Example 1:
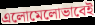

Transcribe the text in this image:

এলোমেলোভাবেই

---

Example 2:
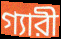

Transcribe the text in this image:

গ্যারী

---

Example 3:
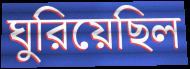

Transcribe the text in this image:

ঘুরিয়েছিল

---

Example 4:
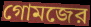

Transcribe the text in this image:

গোমজের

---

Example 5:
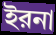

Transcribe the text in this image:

ইরনা